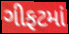
ગીફટમાં